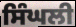
ਸਿੰਘਲੀ